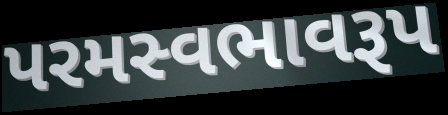
પરમસ્વભાવરૂપ